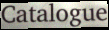
Catalogue